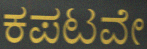
ಕಪಟವೇ